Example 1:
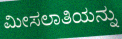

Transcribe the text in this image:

ಮೀಸಲಾತಿಯನ್ನು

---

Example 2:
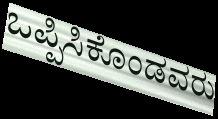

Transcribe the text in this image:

ಒಪ್ಪಿಸಿಕೊಂಡವರು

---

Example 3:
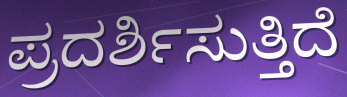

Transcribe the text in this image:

ಪ್ರದರ್ಶಿಸುತ್ತಿದೆ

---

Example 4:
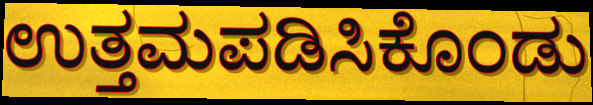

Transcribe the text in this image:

ಉತ್ತಮಪಡಿಸಿಕೊಂಡು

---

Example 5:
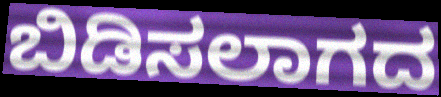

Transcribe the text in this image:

ಬಿಡಿಸಲಾಗದ